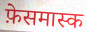
फ़ेसमास्क